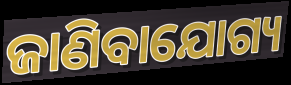
ଜାଣିବାଯୋଗ୍ୟ